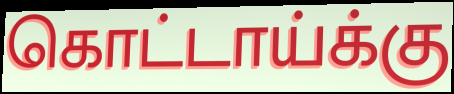
கொட்டாய்க்கு